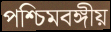
পশ্চিমবঙ্গীয়